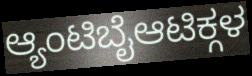
ಆ್ಯಂಟಿಬೈಆಟಿಕ್ಗಳ